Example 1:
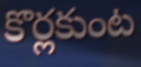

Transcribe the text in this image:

కొర్లకుంట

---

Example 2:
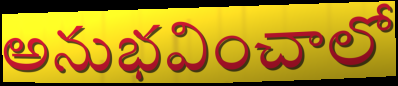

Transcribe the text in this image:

అనుభవించాలో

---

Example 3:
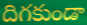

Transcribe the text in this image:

దిగకుండా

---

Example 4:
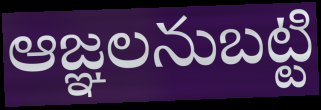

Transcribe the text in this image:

ఆజ్ఞలనుబట్టి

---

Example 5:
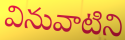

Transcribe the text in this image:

వినువాటిని